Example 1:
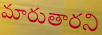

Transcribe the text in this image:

మారుతారని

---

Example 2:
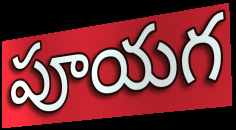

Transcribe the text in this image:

పూయగ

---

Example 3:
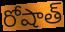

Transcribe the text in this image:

రోషాత్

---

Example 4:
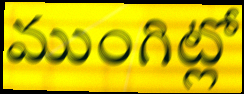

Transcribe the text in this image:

ముంగిట్లో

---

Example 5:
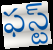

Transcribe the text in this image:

ఫస్ట్